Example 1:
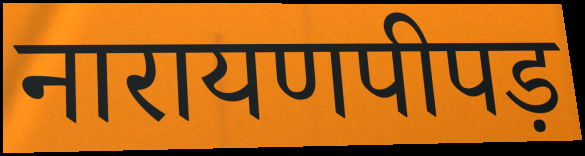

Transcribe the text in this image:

नारायणपीपड़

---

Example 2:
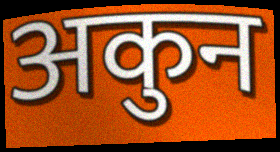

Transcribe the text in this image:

अकुन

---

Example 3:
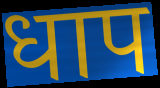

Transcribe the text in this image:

धाप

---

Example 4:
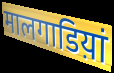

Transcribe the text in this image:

मालगाडिय़ां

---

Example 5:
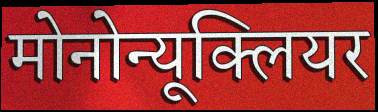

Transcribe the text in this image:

मोनोन्यूक्लियर